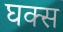
घक्स